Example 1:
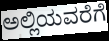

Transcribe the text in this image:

ಅಲ್ಲಿಯವರೆಗೆ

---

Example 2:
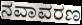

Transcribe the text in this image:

ನವಾವರಣ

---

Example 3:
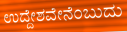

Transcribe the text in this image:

ಉದ್ದೇಶವೇನೆಂಬುದು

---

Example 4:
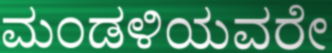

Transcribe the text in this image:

ಮಂಡಳಿಯವರೇ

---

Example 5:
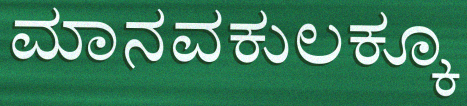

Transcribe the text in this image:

ಮಾನವಕುಲಕ್ಕೂ